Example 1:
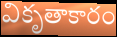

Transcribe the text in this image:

వికృతాకారం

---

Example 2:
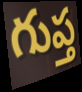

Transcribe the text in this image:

గుప్త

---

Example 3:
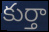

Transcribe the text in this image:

కుర్తా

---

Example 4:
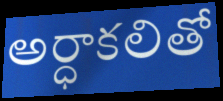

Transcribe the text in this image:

అర్ధాకలితో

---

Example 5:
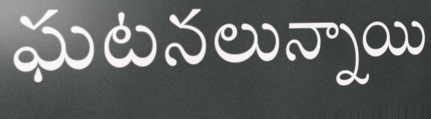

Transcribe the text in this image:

ఘటనలున్నాయి